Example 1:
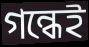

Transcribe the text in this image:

গন্ধেই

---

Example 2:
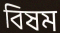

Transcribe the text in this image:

বিষম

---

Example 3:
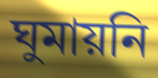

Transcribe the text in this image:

ঘুমায়নি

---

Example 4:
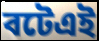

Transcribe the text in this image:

বটেএই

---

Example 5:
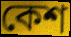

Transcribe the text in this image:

কেশ